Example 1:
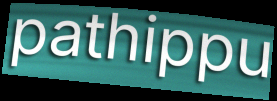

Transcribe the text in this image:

pathippu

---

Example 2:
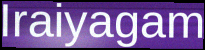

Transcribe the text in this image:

Iraiyagam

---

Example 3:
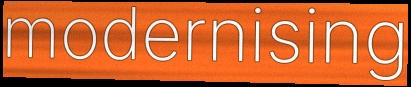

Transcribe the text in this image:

modernising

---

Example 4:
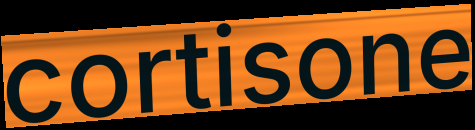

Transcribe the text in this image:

cortisone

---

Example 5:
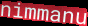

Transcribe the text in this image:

nimmanu